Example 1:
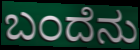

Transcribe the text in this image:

ಬಂದೆನು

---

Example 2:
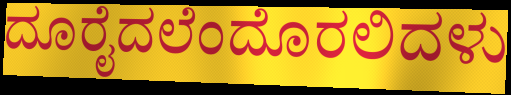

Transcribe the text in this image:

ದೂರೈದಲೆಂದೊರಲಿದಳು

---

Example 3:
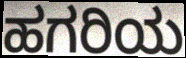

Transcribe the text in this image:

ಹಗರಿಯ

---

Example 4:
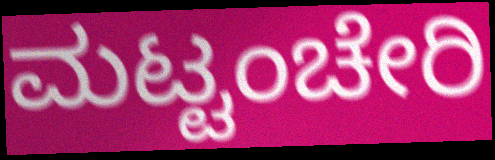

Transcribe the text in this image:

ಮಟ್ಟಂಚೇರಿ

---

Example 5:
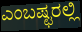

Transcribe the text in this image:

ಎಂಬಷ್ಟರಲ್ಲಿ